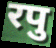
रपु